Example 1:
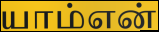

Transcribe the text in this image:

யாம்என்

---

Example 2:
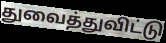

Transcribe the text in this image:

துவைத்துவிட்டு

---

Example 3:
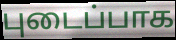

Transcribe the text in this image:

புடைப்பாக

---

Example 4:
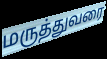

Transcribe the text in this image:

மருத்துவரை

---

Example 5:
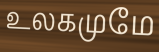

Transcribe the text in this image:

உலகமுமே